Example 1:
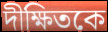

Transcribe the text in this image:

দীক্ষিতকে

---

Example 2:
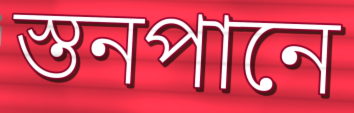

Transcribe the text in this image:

স্তনপানে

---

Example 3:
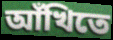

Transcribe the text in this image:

আঁখিতে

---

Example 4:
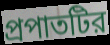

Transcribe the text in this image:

প্রপাতটির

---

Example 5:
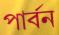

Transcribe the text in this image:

পার্বন